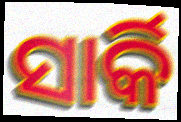
ସାର୍କି